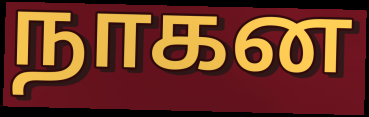
நாகன